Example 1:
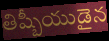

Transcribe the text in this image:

తిష్బీయుడైన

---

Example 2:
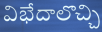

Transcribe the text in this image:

విభేదాలొచ్చి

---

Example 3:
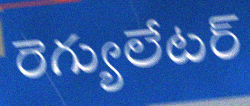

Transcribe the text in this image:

రెగ్యులేటర్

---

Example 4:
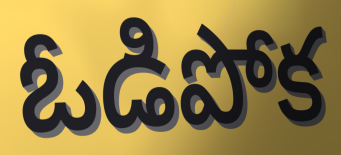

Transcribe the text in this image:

ఓడిపోక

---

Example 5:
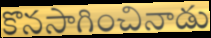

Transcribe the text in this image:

కొనసాగించినాడు